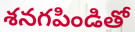
శనగపిండితో